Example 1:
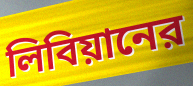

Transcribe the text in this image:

লিবিয়ানের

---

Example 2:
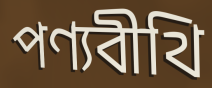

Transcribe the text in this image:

পণ্যবীথি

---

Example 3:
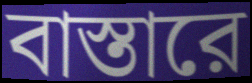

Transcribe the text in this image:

বাস্তারে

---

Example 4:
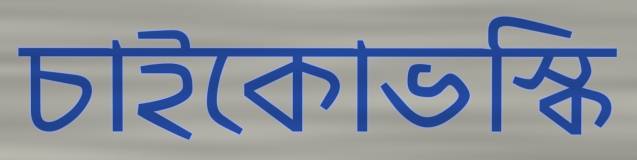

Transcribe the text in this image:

চাইকোভস্কি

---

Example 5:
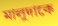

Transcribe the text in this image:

মালুদাকে